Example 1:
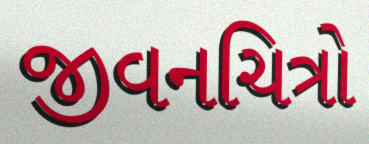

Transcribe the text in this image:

જીવનચિત્રો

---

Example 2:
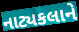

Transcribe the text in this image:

નાટ્યકલાને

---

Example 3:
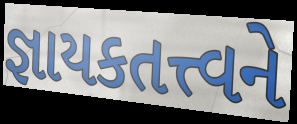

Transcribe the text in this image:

જ્ઞાયકતત્ત્વને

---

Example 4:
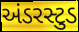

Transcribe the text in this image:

અંડરસ્ટુડ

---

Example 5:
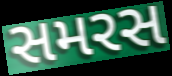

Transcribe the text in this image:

સમરસ